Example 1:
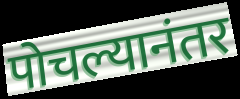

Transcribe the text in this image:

पोचल्यानंतर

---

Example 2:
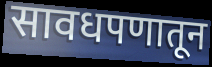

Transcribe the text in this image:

सावधपणातून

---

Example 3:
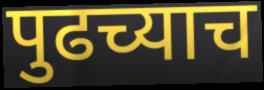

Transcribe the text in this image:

पुढच्याच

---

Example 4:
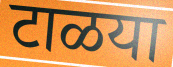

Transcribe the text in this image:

टाळया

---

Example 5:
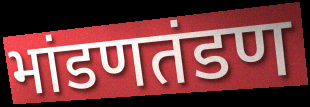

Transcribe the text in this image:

भांडणतंडण